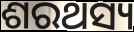
ଶରଥସ୍ୟ